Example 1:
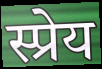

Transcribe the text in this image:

स्प्रेय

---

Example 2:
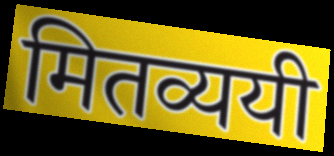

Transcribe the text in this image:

मितव्ययी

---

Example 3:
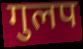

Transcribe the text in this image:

गुलप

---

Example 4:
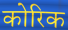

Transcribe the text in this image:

कोरिक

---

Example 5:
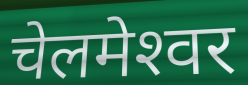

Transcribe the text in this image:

चेलमेश्‍वर